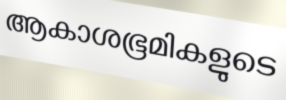
ആകാശഭൂമികളുടെ